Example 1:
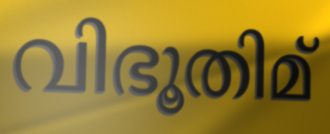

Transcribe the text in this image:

വിഭൂതിമ്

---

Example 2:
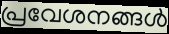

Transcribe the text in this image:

പ്രവേശനങ്ങൾ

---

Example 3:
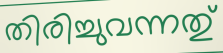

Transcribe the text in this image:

തിരിച്ചുവന്നതു്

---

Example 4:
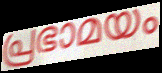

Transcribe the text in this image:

പ്രഭാമയം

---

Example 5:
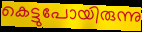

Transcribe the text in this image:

കെട്ടുപോയിരുന്നു